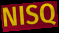
NISQ